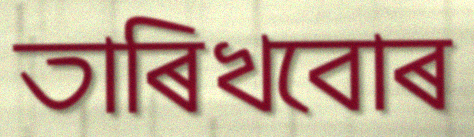
তাৰিখবোৰ